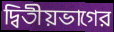
দ্বিতীয়ভাগের